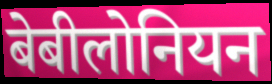
बेबीलोनियन